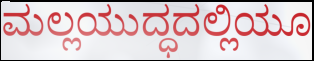
ಮಲ್ಲಯುದ್ಧದಲ್ಲಿಯೂ